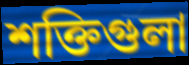
শক্তিগুলা